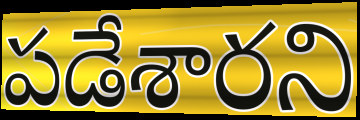
పడేశారని